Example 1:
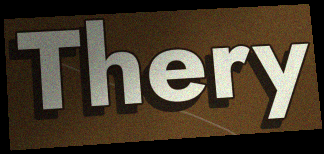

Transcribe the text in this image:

Thery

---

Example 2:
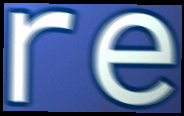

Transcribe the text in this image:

re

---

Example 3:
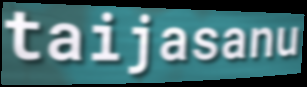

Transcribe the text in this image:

taijasanu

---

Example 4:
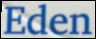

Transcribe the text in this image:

Eden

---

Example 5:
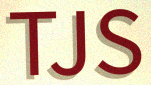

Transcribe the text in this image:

TJS